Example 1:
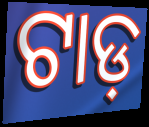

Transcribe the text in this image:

ଟାଡ଼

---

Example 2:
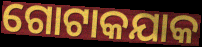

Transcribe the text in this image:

ଗୋଟାକଯାକ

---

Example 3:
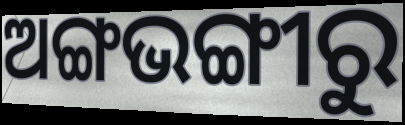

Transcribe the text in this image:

ଅଙ୍ଗଭଙ୍ଗୀରୁ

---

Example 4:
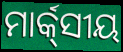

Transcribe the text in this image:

ମାର୍କ୍‍ସୀୟ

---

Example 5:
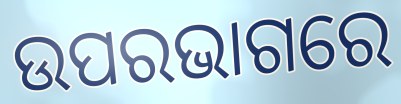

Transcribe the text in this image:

ଉପରଭାଗରେ